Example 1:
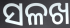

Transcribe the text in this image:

ସଳଖ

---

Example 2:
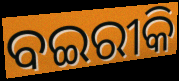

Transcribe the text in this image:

ବଇରୀକି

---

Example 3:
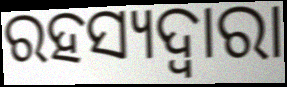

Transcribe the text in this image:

ରହସ୍ୟଦ୍ଵାରା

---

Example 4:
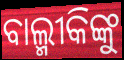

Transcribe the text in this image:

ବାଲ୍ମୀକିଙ୍କୁ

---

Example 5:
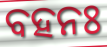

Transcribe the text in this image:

ବହନଃ